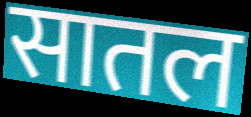
सातल